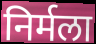
निर्मला